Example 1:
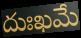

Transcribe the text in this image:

దుఃఖమే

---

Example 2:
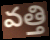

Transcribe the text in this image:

వత్తి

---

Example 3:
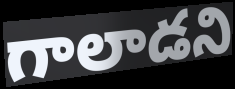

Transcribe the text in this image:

గాలాడని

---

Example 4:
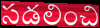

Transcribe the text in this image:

సడలించి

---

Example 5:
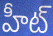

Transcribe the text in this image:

హీట్